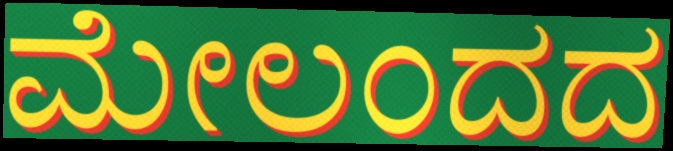
ಮೇಲಂದದ